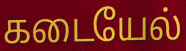
கடையேல்